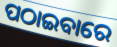
ପଠାଇବାରେ